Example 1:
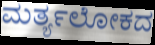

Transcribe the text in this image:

ಮರ್ತ್ಯಲೋಕದ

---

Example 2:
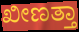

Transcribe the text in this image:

ಖೀಣತ್ತಾ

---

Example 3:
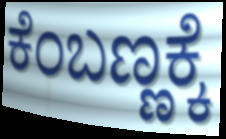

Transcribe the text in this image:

ಕೆಂಬಣ್ಣಕ್ಕೆ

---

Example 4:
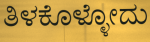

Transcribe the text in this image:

ತಿಳಕೊಳ್ಳೋದು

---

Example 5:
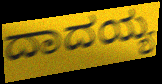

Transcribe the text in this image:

ದಾದಯ್ಯ